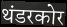
थंडरकोर